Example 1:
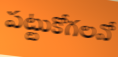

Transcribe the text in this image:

పట్టుకోగలనో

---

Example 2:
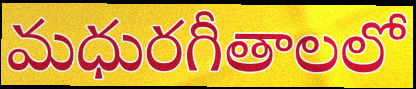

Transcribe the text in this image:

మధురగీతాలలో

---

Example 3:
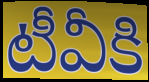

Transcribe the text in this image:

టీవీకి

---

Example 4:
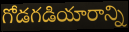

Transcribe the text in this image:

గోడగడియారాన్ని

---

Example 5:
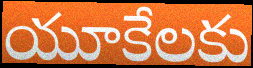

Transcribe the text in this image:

యూకేలకు